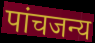
पांचजन्य